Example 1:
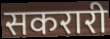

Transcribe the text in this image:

सकरारी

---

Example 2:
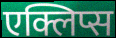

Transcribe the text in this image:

एक्लिप्स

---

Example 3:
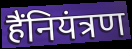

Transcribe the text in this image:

हैंनियंत्रण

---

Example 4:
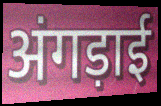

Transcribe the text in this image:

अंगड़ाई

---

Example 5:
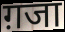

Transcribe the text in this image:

ग़जा